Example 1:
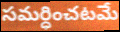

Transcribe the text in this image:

సమర్ధించటమే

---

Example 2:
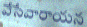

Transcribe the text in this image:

వేసేవారాయన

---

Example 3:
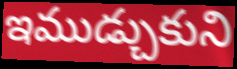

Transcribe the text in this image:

ఇముడ్చుకుని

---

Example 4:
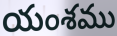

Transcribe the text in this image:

యంశము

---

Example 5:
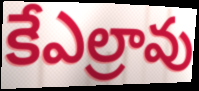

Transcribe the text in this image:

కేఎల్రావు